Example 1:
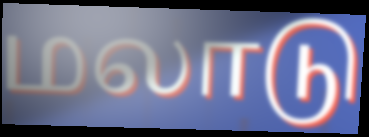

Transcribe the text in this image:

மலாடு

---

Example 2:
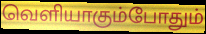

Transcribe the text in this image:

வெளியாகும்போதும்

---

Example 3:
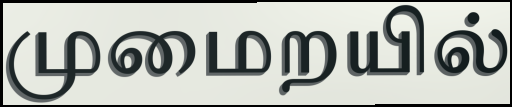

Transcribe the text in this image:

முமைறயில்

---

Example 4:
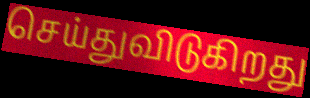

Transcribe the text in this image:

செய்துவிடுகிறது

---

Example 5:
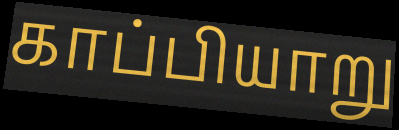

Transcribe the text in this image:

காப்பியாறு